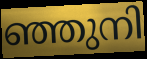
ഞ്ഞുനി